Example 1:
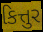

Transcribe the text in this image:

કિત્તુર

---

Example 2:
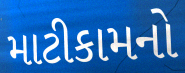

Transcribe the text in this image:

માટીકામનો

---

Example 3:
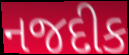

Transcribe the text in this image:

નજદીક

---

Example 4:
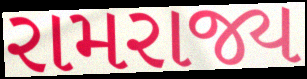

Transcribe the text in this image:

રામરાજ્ય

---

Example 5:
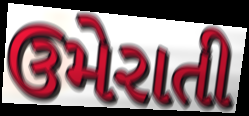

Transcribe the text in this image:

ઉમેરાતી